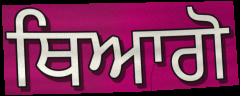
ਥਿਆਗੋ